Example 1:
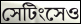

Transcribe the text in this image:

সেটিংসেও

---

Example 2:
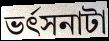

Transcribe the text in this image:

ভর্ৎসনাটা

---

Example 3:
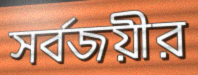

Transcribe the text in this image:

সর্বজয়ীর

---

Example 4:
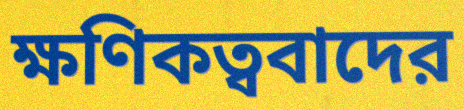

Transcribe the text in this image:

ক্ষণিকত্ববাদের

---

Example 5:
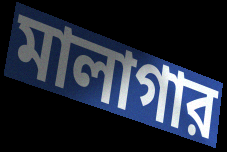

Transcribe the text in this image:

মালাগার